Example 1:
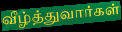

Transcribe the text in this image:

வீழ்த்துவார்கள்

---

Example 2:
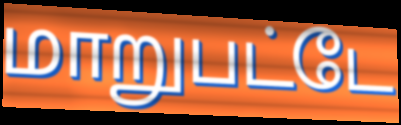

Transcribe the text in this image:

மாறுபட்டே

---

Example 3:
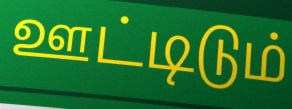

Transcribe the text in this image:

ஊட்டிடும்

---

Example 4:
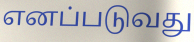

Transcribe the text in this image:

எனப்படுவது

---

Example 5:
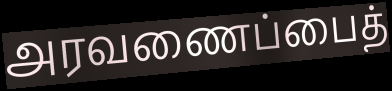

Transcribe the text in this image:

அரவணைப்பைத்